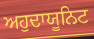
ਅਹੁਦਾਯੂਨਿਟ